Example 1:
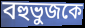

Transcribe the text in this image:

বহুভুজকে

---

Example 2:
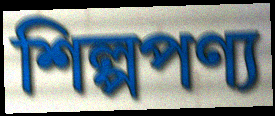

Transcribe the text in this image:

শিল্পপণ্য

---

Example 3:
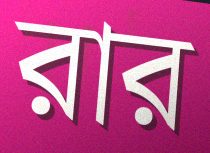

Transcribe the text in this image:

রার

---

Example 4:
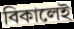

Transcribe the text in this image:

বিকালেই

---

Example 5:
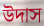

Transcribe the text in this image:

উদাস